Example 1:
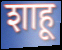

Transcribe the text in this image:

शाहू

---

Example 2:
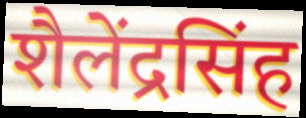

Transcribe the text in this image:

शैलेंद्रसिंह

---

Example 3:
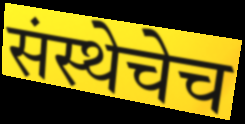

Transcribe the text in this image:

संस्थेचेच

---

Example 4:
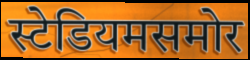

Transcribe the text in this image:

स्टेडियमसमोर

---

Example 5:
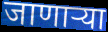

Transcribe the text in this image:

जाणाऱ्या